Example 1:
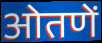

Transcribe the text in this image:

ओतणें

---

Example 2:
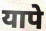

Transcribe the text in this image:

यापे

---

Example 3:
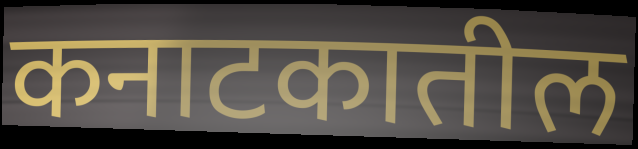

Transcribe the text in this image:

कनाटकातील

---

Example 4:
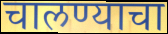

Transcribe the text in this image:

चालण्याचा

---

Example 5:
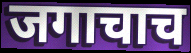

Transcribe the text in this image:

जगाचाच